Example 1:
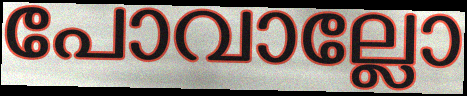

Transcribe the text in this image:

പോവാല്ലോ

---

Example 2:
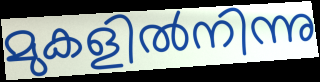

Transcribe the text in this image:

മുകളിൽനിന്നു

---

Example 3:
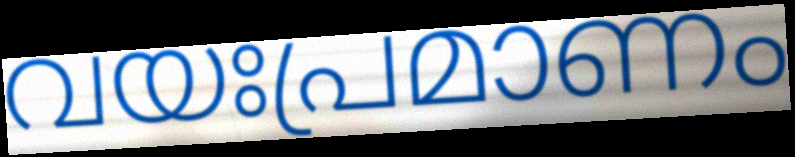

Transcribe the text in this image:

വയഃപ്രമാണം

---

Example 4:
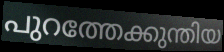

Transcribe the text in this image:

പുറത്തേക്കുന്തിയ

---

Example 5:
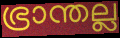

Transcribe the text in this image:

ഭ്രാന്തല്ല